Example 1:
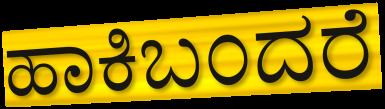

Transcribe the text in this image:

ಹಾಕಿಬಂದರೆ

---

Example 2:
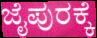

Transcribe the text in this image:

ಜೈಪುರಕ್ಕೆ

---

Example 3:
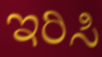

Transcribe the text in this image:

ಇರಿಸಿ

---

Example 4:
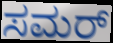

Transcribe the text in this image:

ಸಮರ್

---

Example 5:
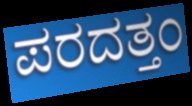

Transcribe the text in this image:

ಪರದತ್ತಂ